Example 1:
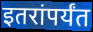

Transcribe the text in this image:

इतरांपर्यंत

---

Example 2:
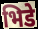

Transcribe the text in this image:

भिडे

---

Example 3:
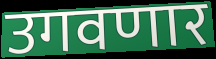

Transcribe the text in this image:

उगवणार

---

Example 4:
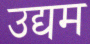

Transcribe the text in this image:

उद्यम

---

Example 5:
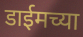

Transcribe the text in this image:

डाईमच्या